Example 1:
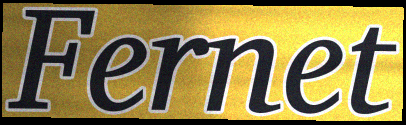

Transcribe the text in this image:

Fernet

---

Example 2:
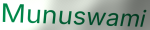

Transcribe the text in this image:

Munuswami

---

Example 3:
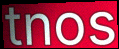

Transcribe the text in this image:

tnos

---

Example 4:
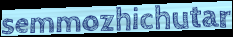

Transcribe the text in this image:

semmozhichutar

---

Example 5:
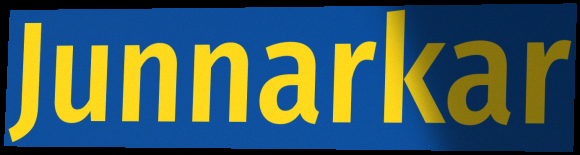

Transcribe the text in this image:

Junnarkar